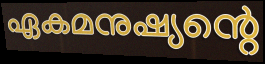
ഏകമനുഷ്യന്റെ